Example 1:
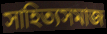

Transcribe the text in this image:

সাহিত্যসমাজ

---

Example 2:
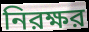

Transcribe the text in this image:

নিরক্ষর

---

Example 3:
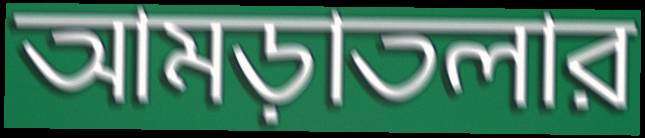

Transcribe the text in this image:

আমড়াতলার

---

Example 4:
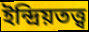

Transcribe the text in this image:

ইন্দ্রিয়তত্ত্ব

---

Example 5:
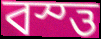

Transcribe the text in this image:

বস্ত্ত